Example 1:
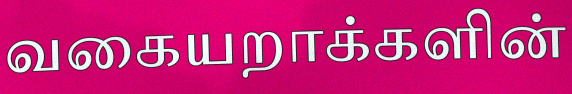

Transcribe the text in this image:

வகையறாக்களின்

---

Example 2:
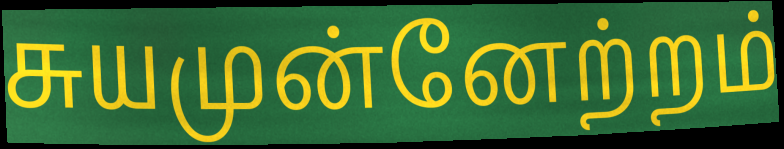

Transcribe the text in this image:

சுயமுன்னேற்றம்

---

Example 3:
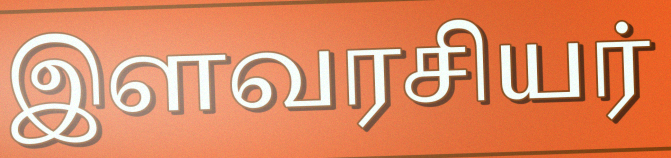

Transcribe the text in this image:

இளவரசியர்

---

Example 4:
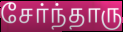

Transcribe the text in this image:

சேர்ந்தாரு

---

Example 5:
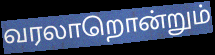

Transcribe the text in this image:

வரலாறொன்றும்